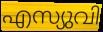
എസ്യുവി